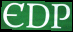
EDP